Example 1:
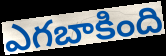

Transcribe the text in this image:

ఎగబాకింది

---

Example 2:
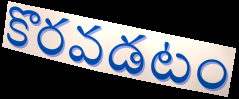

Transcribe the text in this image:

కొరవడటం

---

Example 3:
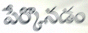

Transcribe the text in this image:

పేర్కొనడం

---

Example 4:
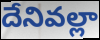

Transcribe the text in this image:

దేనివల్లా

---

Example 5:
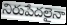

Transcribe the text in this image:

నిరుపేదలైనా